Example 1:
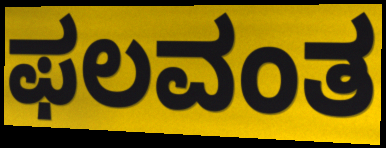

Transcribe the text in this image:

ಫಲವಂತ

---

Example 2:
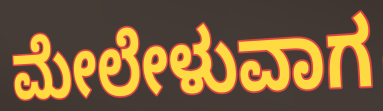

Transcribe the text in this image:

ಮೇಲೇಳುವಾಗ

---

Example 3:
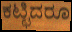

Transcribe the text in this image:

ಕಟ್ಟಿದರೂ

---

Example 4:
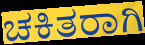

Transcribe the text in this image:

ಚಕಿತರಾಗಿ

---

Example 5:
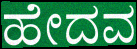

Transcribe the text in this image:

ಹೇದವ